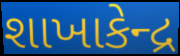
શાખાકેન્દ્ર